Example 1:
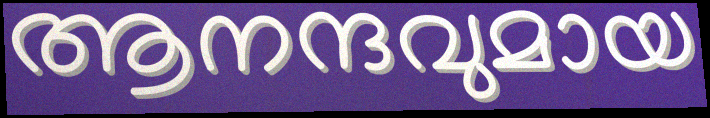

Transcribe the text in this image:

ആനന്ദവുമായ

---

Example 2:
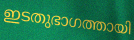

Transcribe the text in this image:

ഇടതുഭാഗത്തായി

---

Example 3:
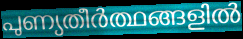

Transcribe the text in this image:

പുണ്യതീർത്ഥങ്ങളിൽ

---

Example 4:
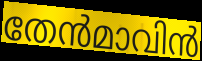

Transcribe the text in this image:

തേൻമാവിൻ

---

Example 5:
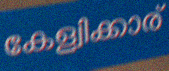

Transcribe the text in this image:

കേള്വിക്കാര്